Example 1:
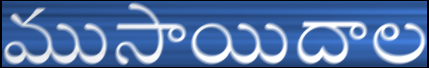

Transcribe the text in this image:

ముసాయిదాల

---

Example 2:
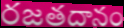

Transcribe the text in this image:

రజతదానం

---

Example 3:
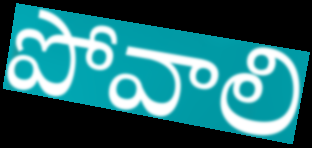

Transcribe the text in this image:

పోవాలి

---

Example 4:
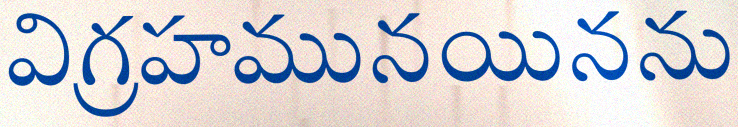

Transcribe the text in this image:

విగ్రహమునయినను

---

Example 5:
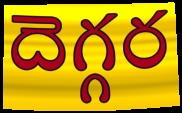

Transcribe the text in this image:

దెగ్గర